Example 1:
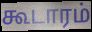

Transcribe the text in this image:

கூடாரம்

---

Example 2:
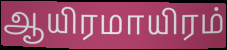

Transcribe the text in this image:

ஆயிரமாயிரம்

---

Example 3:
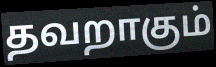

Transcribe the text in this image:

தவறாகும்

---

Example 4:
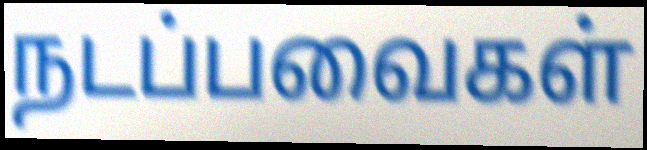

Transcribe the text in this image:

நடப்பவைகள்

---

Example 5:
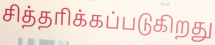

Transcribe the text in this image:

சித்தரிக்கப்படுகிறது